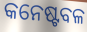
କନେଷ୍ଟବଳ